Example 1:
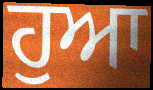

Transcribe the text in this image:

ਹੁਆ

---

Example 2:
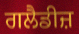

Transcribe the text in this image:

ਗਲੈਡੀਜ਼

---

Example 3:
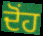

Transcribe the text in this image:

ਦੋਂਹ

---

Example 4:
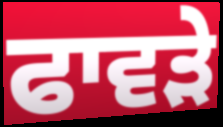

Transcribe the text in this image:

ਫਾਵੜੇ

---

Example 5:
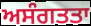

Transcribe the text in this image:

ਅਸੰਗਤਤਾ